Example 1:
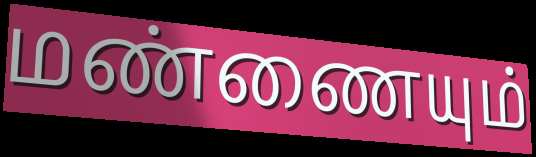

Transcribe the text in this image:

மண்ணையும்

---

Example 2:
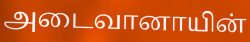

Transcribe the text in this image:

அடைவானாயின்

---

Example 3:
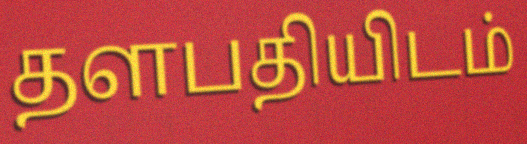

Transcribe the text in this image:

தளபதியிடம்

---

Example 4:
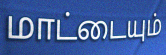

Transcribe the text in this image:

மாட்டையும்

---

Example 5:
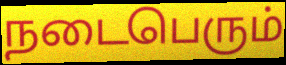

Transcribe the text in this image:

நடைபெரும்